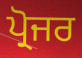
ਪ੍ਰੋਜਰ